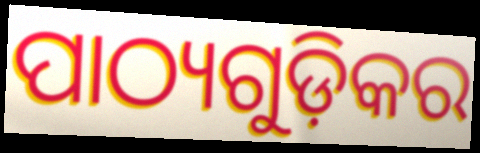
ପାଠ୍ୟଗୁଡ଼ିକର